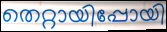
തെറ്റായിപ്പോയി